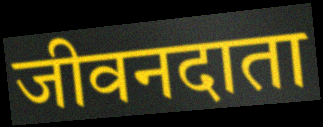
जीवनदाता